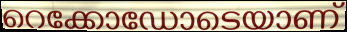
റെക്കോഡോടെയാണ്